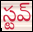
స్టవ్